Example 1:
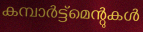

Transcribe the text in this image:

കമ്പാർട്ട്മെന്റുകൾ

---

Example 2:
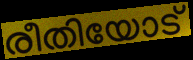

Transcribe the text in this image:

രീതിയോട്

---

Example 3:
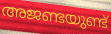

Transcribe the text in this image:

അജണ്ടയുണ്ട്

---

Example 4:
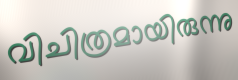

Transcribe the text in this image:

വിചിത്രമായിരുന്നു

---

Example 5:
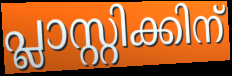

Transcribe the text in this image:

പ്ലാസ്റ്റിക്കിന്